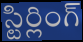
స్టిర్లింగ్